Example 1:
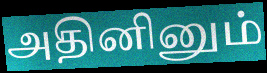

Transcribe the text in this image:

அதினினும்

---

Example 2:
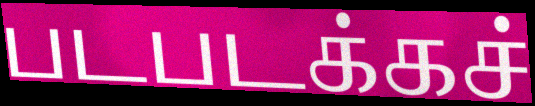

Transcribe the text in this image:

படபடக்கச்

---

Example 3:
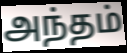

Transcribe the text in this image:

அந்தம்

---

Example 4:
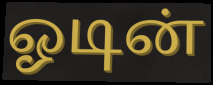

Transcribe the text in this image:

ஓடின்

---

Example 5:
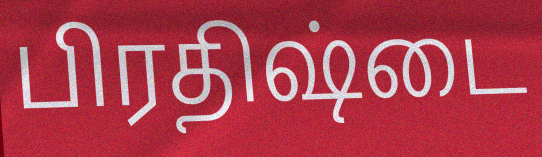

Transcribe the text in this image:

பிரதிஷ்டை